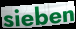
sieben